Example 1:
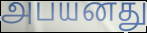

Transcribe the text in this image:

அபயனது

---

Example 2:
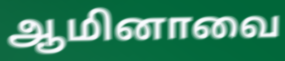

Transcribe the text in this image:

ஆமினாவை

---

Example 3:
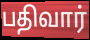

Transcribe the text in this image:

பதிவார்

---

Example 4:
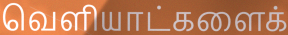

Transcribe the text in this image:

வெளியாட்களைக்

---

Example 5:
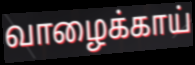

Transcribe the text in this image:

வாழைக்காய்